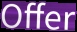
Offer